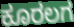
ಕೂರಲಗ